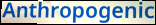
Anthropogenic